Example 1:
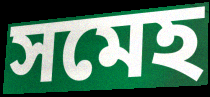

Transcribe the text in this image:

সমেহ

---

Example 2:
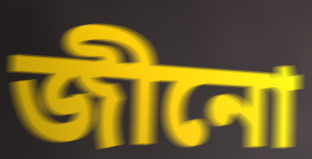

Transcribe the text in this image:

জীনো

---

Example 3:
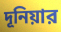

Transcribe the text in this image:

দূনিয়ার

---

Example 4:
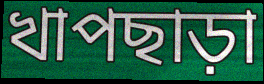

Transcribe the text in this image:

খাপছাড়া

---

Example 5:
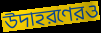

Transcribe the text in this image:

উদাহরণেরও